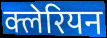
क्लेरियन